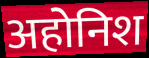
अहोनिश